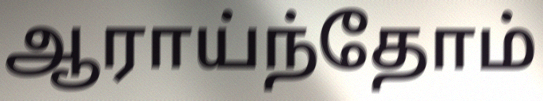
ஆராய்ந்தோம்